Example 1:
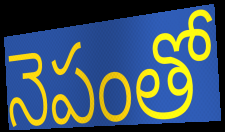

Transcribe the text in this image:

నెపంతో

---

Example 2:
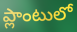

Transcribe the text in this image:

ప్లాంటులో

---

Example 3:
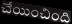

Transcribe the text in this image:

చేయించింది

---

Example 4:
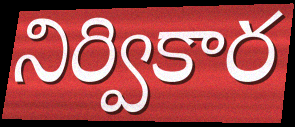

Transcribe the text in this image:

నిర్వికార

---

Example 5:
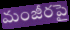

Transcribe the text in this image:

మంజీరపై